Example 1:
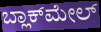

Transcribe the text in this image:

ಬ್ಲಾಕ್‌ಮೇಲ್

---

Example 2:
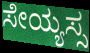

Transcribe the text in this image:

ಸೇಯ್ಯಸ್ಸ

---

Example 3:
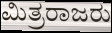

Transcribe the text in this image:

ಮಿತ್ರರಾಜರು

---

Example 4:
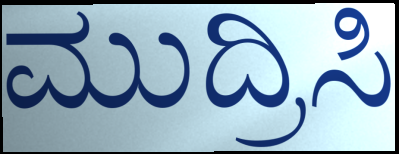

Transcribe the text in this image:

ಮುದ್ರಿಸಿ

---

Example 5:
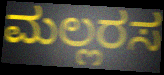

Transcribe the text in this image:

ಮಲ್ಲರಸ